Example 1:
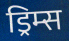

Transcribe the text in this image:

ड्रिम्स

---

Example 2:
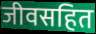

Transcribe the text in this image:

जीवसहित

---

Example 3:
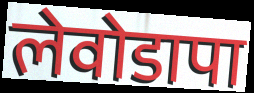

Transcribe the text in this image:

लेवोडापा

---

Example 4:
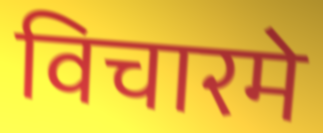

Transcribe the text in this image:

विचारमे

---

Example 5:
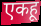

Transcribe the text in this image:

एकहू